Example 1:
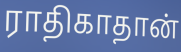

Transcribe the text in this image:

ராதிகாதான்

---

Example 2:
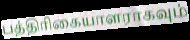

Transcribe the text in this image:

பத்திரிகையாளராகவும்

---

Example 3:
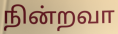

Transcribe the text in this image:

நின்றவா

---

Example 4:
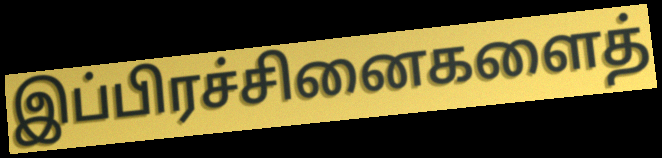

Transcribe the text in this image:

இப்பிரச்சினைகளைத்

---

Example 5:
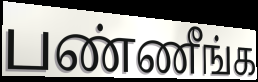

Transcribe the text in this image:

பண்ணீங்க